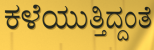
ಕಳೆಯುತ್ತಿದ್ದಂತೆ